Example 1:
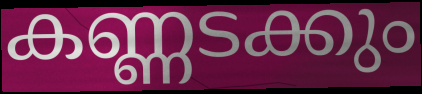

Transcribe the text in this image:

കണ്ണടക്കും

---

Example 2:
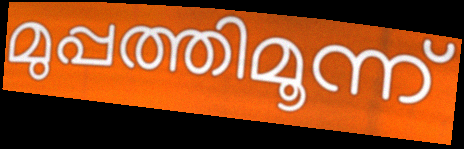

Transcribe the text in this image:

മുപ്പത്തിമൂന്ന്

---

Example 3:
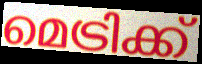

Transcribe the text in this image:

മെട്രിക്ക്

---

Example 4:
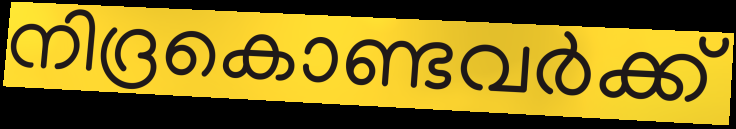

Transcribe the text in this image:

നിദ്രകൊണ്ടവർക്ക്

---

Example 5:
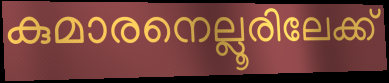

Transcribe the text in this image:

കുമാരനെല്ലൂരിലേക്ക്